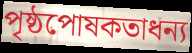
পৃষ্ঠপোষকতাধন্য